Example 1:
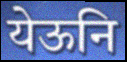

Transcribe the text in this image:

येऊनि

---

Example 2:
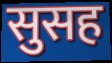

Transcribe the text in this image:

सुसह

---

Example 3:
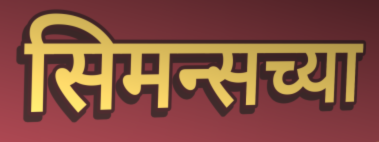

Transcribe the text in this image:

सिमन्सच्या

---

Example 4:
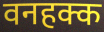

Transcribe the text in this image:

वनहक्क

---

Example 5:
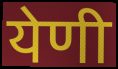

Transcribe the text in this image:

येणी